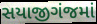
સયાજીગંજમાં